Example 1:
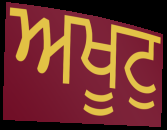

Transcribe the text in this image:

ਅਖੂਟੁ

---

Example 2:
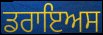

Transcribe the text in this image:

ਡਰਾਇਅਸ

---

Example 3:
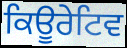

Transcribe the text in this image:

ਕਿਊਰੇਟਿਵ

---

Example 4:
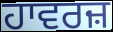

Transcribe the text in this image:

ਹਾਵਰਜ਼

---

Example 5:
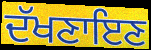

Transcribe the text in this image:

ਦੱਖਣਾਇਣ